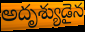
అదృశ్యుడైన